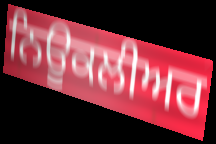
ਨਿਊਕਲੀਅਰ